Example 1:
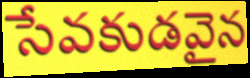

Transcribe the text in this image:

సేవకుడవైన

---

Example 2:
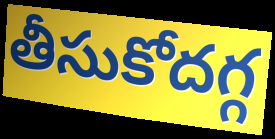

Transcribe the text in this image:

తీసుకోదగ్గ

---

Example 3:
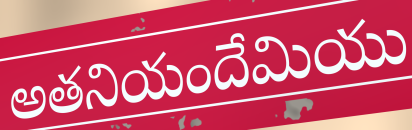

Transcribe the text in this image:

అతనియందేమియు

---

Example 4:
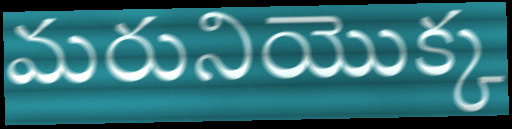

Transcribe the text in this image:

మరునియొక్క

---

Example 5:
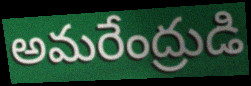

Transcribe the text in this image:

అమరేంద్రుడి